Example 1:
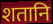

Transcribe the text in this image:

शतानि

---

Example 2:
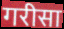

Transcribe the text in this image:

गरीसा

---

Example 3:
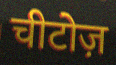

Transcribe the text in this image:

चीटोज़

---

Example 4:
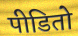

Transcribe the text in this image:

पीडितो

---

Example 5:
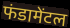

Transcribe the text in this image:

फंडामेंटल